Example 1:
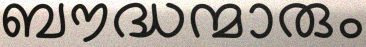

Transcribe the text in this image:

ബൗദ്ധന്മാരും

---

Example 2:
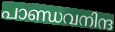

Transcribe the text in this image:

പാണ്ഡവനിന്ദ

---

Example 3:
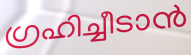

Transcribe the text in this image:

ഗ്രഹിച്ചീടാൻ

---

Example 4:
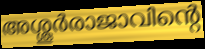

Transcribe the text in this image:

അശ്ശൂർരാജാവിന്റെ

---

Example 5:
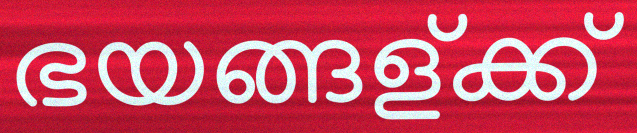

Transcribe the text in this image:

ഭയങ്ങള്ക്ക്